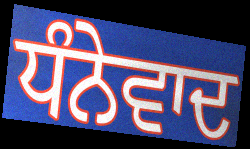
ਧੰਨੇਵਾਦ